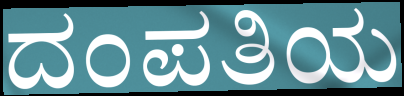
ದಂಪತಿಯ